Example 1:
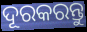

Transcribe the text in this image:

ଦୂରକରନ୍ତୁ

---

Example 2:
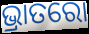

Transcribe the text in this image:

ଭ୍ରାତରୋ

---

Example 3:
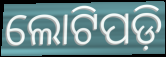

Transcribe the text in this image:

ଲୋଟିପଡ଼ି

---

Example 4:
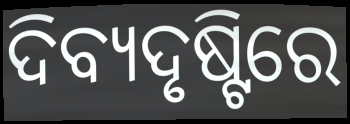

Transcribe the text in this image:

ଦିବ୍ୟଦୃଷ୍ଟିରେ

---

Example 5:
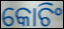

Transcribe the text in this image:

କୋଚିଂ